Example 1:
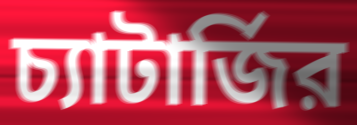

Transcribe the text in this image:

চ্যাটার্জির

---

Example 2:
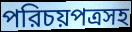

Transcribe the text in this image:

পরিচয়পত্রসহ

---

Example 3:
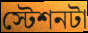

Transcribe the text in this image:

স্টেশনটা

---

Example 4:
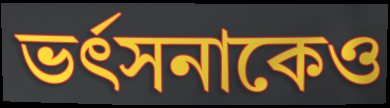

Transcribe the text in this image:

ভর্ৎসনাকেও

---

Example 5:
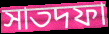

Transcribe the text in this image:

সাতদফা